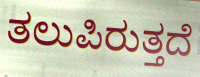
ತಲುಪಿರುತ್ತದೆ